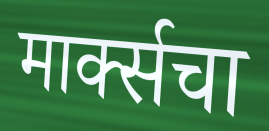
मार्क्सचा